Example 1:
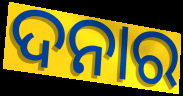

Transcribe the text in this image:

ଦନାର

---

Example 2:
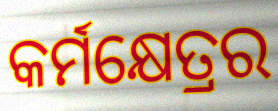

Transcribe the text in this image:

କର୍ମକ୍ଷେତ୍ରର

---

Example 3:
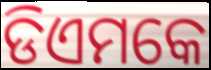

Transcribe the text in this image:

ଡିଏମକେ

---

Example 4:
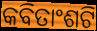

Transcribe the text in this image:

କବିତାଂଶଟି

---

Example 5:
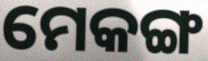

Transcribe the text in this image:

ମେକଙ୍ଗ